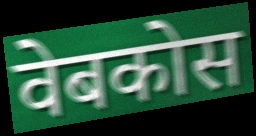
वेबकोस